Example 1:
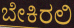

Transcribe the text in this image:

ಬೇಕಿರಲಿ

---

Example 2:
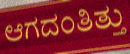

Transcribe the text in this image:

ಆಗದಂತಿತ್ತು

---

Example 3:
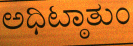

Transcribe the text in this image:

ಅಧಿಟ್ಠಾತುಂ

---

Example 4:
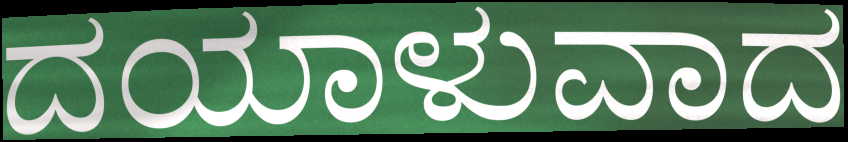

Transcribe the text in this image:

ದಯಾಳುವಾದ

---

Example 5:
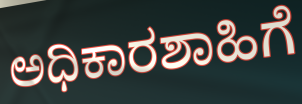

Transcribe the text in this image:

ಅಧಿಕಾರಶಾಹಿಗೆ